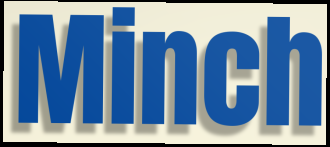
Minch